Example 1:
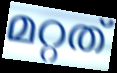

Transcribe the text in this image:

മറ്റത്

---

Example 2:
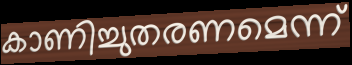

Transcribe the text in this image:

കാണിച്ചുതരണമെന്ന്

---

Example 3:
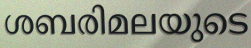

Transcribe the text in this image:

ശബരിമലയുടെ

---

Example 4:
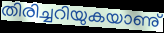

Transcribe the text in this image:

തിരിച്ചറിയുകയാണു്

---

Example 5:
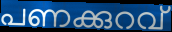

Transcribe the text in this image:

പണക്കുറവ്